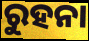
ରୁହନା